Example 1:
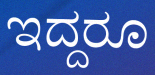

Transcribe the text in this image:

ಇದ್ದರೂ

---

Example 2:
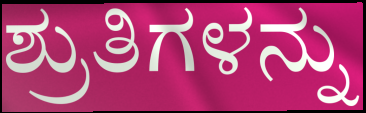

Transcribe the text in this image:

ಶ್ರುತಿಗಳನ್ನು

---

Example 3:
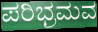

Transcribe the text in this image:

ಪರಿಭ್ರಮವ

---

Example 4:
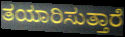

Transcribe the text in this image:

ತಯಾರಿಸುತ್ತಾರೆ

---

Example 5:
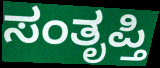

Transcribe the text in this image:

ಸಂತೃಪ್ತಿ